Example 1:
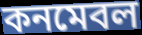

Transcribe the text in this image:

কনমেবল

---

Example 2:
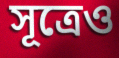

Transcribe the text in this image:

সূত্রেও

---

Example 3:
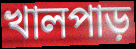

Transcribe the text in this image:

খালপাড়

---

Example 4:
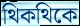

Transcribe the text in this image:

থিকথিকে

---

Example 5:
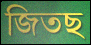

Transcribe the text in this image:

জিতছ